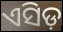
ଏସିଡ଼